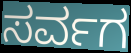
ಸರ್ವಗ